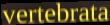
vertebrata